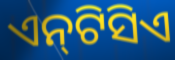
ଏନ୍‌ଟିସିଏ